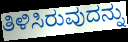
ತಿಳಿಸಿರುವುದನ್ನು